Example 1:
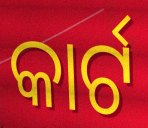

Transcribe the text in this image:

କାର୍ଟ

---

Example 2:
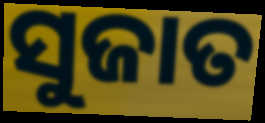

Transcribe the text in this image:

ସୁଜାତ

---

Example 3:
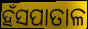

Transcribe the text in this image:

ହଁସପାତାଳ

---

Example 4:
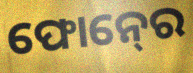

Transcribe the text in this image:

ଫୋନ୍‍ରେ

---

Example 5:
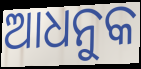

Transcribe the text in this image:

ଆଧନୁକ